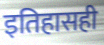
इतिहासही